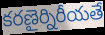
కరణైర్నిరీయతే